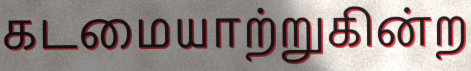
கடமையாற்றுகின்ற